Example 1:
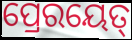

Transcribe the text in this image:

ପ୍ରେରୟେତ୍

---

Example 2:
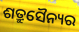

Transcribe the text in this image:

ଶତ୍ରୁସୈନ୍ୟର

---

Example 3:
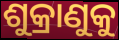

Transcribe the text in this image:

ଶୁକ୍ରାଣୁକୁ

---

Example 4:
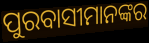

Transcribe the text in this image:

ପୁରବାସୀମାନଙ୍କର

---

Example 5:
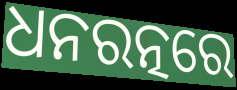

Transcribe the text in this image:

ଧନରତ୍ନରେ